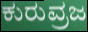
ಕುರುವ್ರಜ